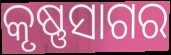
କୃଷ୍ଣସାଗର